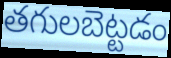
తగులబెట్టడం